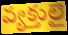
వ్యక్తులై